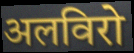
अलविरो